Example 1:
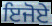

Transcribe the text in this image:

ਇਜੋਏ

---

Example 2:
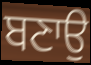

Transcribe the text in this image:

ਬਣਾਉ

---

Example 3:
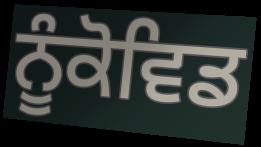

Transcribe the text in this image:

ਨੂੰਕੋਵਿਡ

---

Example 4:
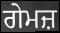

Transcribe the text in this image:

ਗੇਮਜ਼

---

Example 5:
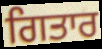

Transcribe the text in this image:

ਗਿਤਾਰ